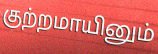
குற்றமாயினும்